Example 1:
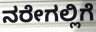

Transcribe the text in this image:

ನರೇಗಲ್ಲಿಗೆ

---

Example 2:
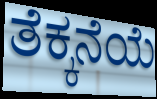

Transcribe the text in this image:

ತೆಕ್ಕನೆಯೆ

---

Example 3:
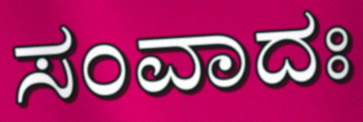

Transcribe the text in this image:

ಸಂವಾದಃ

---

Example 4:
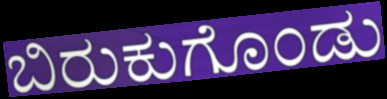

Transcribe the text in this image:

ಬಿರುಕುಗೊಂಡು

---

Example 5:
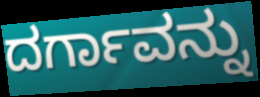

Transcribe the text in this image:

ದರ್ಗಾವನ್ನು